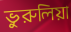
ভুরুলিয়া